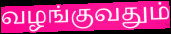
வழங்குவதும்